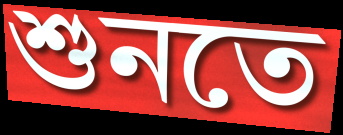
শুনতে